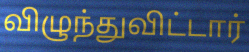
விழுந்துவிட்டார்